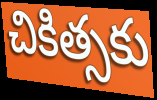
చికిత్సకు